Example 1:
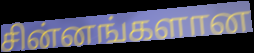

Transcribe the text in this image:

சின்னங்களான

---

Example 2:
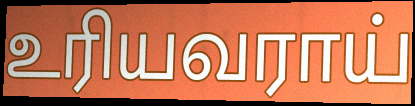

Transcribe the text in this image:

உரியவராய்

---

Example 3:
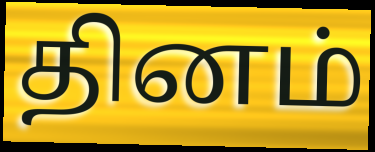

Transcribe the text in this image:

தினம்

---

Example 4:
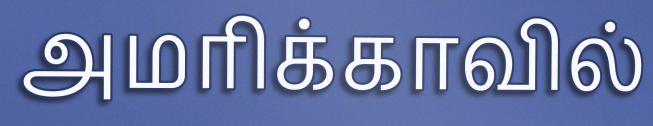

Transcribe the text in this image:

அமரிக்காவில்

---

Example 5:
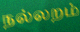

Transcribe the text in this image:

நல்லறம்